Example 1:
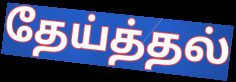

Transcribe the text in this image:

தேய்த்தல்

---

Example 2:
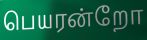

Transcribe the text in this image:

பெயரன்றோ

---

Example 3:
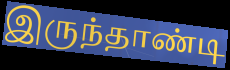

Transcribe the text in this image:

இருந்தாண்டி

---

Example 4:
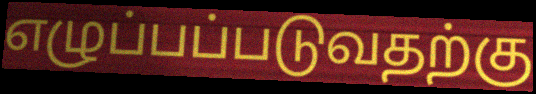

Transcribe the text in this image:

எழுப்பப்படுவதற்கு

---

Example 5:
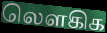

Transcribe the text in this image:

லௌகிக